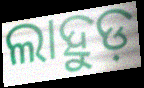
ଲାହୁଡ଼